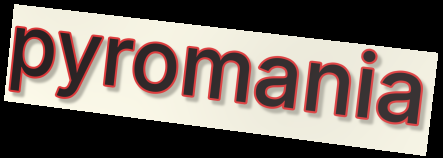
pyromania